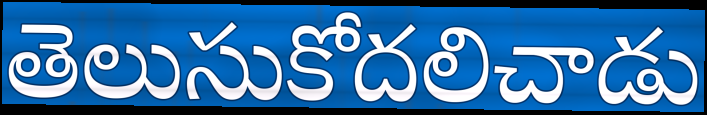
తెలుసుకోదలిచాడు